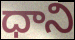
ధాని